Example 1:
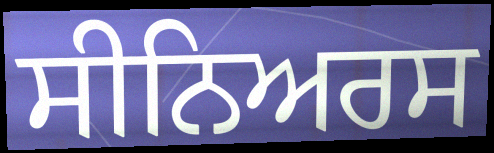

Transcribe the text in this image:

ਸੀਨਿਅਰਸ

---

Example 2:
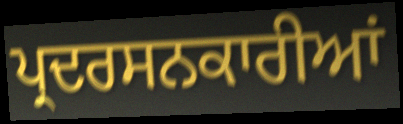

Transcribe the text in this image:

ਪ੍ਰਦਰਸਨਕਾਰੀਆਂ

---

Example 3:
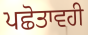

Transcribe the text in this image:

ਪਛੋਤਾਵਹੀ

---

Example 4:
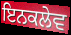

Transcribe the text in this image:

ਇਨਕਲੇਵ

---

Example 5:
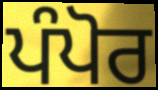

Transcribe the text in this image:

ਪੰਪੋਰ